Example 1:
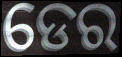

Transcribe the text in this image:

ଡେର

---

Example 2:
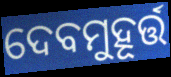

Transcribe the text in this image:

ଦେବମୁହୂର୍ତ୍ତ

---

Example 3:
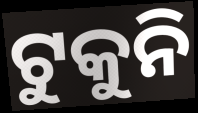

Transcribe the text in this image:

ଟୁକୁନି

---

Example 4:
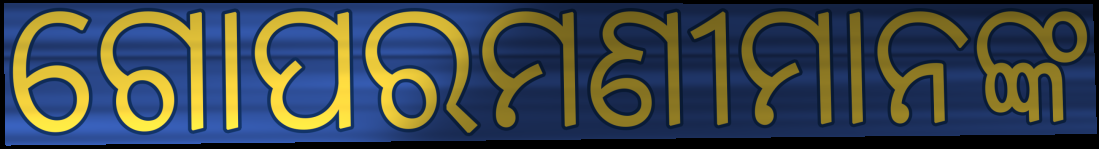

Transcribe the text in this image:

ଗୋପରମଣୀମାନଙ୍କ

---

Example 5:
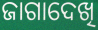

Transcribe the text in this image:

ଜାଗାଦେଖି